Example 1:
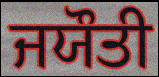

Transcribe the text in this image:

ਜਯੌਤੀ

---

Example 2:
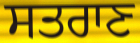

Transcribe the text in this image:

ਸਤਰਾਣ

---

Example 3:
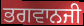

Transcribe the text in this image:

ਭਗਵਾਨਜੀ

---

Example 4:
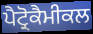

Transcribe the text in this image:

ਪੈਟ੍ਰੋਕੈਮੀਕਲ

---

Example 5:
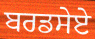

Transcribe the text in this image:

ਬਰਡਸੇਏ